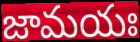
జామయః